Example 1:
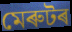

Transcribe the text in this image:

মেৰুটৰ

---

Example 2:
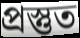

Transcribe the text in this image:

প্ৰস্তুত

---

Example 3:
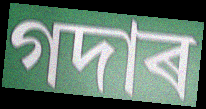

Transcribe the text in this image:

গদাৰ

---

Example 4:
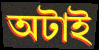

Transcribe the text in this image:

অটাই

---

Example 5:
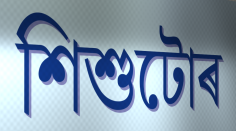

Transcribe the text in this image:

শিশুটোৰ